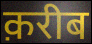
क़रीब